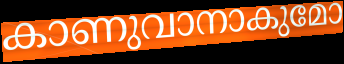
കാണുവാനാകുമോ